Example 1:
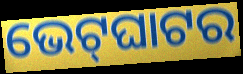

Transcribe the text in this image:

ଭେଟ୍‌ଘାଟର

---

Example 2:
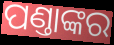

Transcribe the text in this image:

ପଣ୍ତାଙ୍କର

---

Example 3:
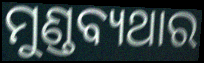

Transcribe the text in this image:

ମୁଣ୍ଡବ୍ୟଥାର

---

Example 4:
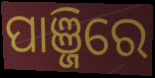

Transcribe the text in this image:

ପାଞ୍ଜିରେ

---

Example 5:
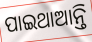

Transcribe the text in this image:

ପାଇଥାଆନ୍ତି